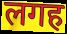
लगह